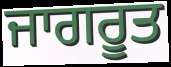
ਜਾਗਰੂਤ